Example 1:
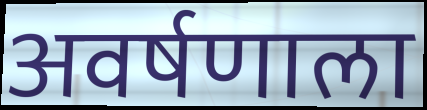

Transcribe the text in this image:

अवर्षणाला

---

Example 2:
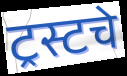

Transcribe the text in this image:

ट्रस्टचे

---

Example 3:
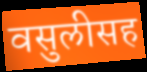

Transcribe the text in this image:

वसुलीसह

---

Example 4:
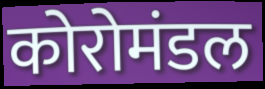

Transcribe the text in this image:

कोरोमंडल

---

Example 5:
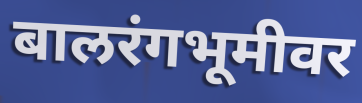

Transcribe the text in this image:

बालरंगभूमीवर